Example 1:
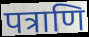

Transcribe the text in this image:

पत्राणि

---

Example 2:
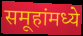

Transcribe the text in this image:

समूहांमध्ये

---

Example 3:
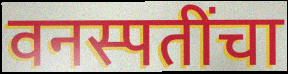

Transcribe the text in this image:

वनस्पतींचा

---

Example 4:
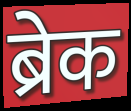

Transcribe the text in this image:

ब्रेक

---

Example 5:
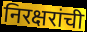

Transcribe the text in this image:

निरक्षरांची